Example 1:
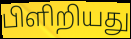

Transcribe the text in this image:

பிளிறியது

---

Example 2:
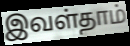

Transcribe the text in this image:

இவள்தாம்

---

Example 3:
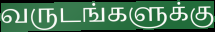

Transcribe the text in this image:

வருடங்களுக்கு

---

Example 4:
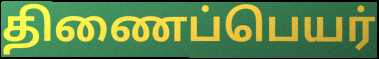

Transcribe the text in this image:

திணைப்பெயர்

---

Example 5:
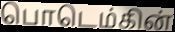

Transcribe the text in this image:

பொடெம்கின்